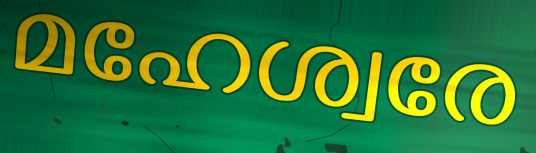
മഹേശ്വരേ